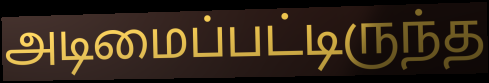
அடிமைப்பட்டிருந்த